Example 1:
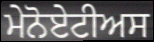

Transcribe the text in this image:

ਮੇਨੋਏਟੀਅਸ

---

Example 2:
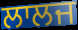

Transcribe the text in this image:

ਲਾਲਜ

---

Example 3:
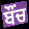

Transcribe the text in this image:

ਬੌਂਚ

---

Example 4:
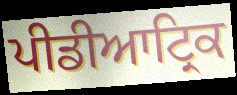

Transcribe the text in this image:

ਪੀਡੀਆਟ੍ਰਿਕ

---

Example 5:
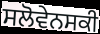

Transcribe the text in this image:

ਸਲੋਵੇਨਸਕੀ